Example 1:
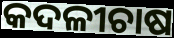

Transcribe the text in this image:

କଦଳୀଚାଷ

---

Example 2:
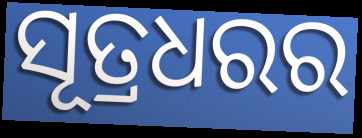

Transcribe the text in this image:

ସୂତ୍ରଧରର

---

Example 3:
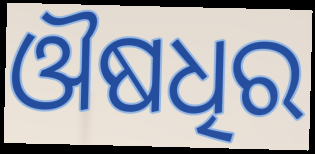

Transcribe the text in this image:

ଔଷଧିର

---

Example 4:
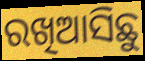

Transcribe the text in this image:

ରଖିଆସିଛୁ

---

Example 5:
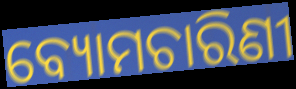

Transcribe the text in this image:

ବ୍ୟୋମଚାରିଣୀ